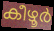
കീഴൂർ